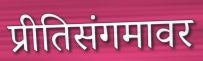
प्रीतिसंगमावर